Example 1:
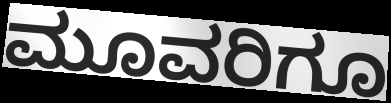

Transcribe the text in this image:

ಮೂವರಿಗೂ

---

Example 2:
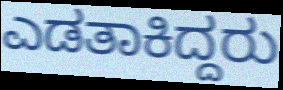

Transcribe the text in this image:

ಎಡತಾಕಿದ್ದರು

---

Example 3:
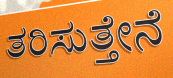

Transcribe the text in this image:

ತರಿಸುತ್ತೇನೆ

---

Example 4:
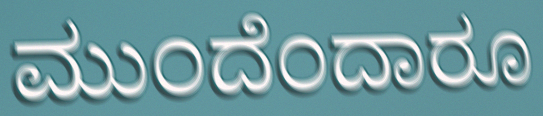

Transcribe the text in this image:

ಮುಂದೆಂದಾರೂ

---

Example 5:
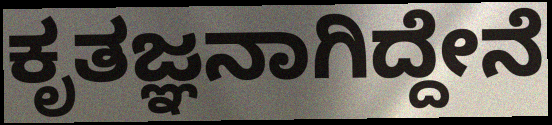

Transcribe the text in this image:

ಕೃತಜ್ಞನಾಗಿದ್ದೇನೆ